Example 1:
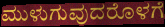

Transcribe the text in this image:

ಮುಳುಗುವುದರೊಳಗೆ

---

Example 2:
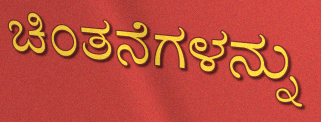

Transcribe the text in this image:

ಚಿಂತನೆಗಳನ್ನು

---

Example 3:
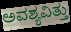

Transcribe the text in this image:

ಅವಶ್ಯವಿತ್ತು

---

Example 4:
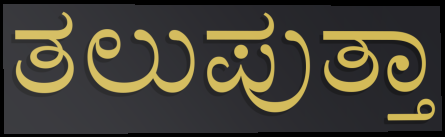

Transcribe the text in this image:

ತಲುಪುತ್ತಾ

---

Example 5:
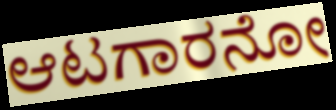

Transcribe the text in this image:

ಆಟಗಾರನೋ